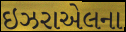
ઇઝરાએલના